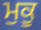
ਮੁਕੂ